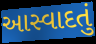
આસ્વાદતું